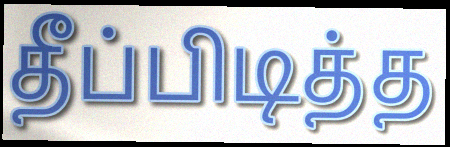
தீப்பிடித்த